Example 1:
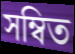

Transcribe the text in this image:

সম্বিত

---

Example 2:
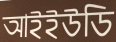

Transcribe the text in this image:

আইইউডি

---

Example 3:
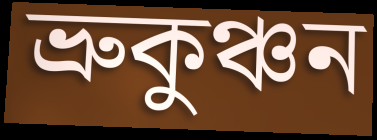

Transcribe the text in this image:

ভ্রুকুঞ্চন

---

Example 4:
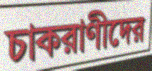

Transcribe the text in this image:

চাকরাণীদের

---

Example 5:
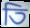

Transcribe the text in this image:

তি